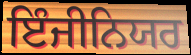
ਇੰਜੀਨਿਯਰ